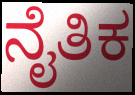
ನೈತಿಕ